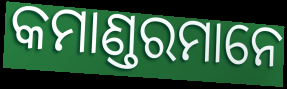
କମାଣ୍ଡରମାନେ